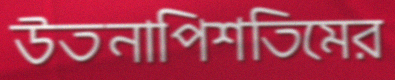
উতনাপিশতিমের